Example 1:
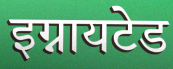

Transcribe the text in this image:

इग्नायटेड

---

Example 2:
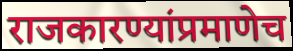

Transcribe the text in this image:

राजकारण्यांप्रमाणेच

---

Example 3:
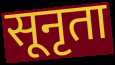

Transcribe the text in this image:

सूनृता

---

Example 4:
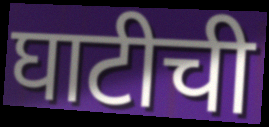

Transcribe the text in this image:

घाटीची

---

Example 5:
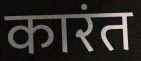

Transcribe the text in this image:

कारंत